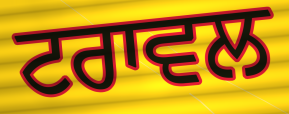
ਟਰਾਵਲ